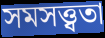
সমসত্ত্বতা